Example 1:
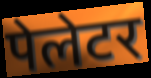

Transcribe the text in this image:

पेलेटर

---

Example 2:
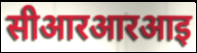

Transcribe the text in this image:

सीआरआरआइ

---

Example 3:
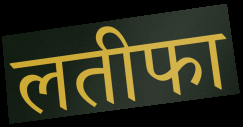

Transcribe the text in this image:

लतीफा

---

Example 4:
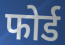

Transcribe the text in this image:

फोर्ड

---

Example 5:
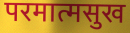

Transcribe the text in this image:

परमात्मसुख